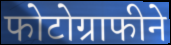
फोटोग्राफीने